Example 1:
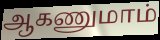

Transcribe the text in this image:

ஆகணுமாம்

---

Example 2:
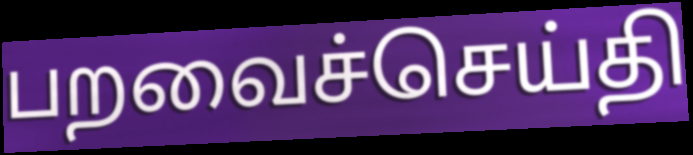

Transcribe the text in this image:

பறவைச்செய்தி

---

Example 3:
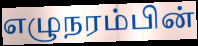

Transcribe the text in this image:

எழுநரம்பின்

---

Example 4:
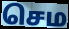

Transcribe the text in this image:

செம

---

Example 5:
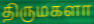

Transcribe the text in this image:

திருமகளா